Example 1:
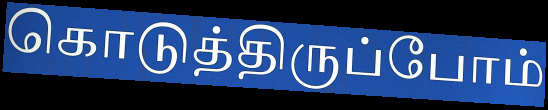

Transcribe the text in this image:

கொடுத்திருப்போம்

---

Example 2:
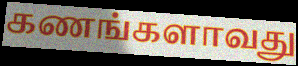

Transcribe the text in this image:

கணங்களாவது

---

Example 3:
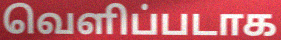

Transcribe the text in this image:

வெளிப்படாக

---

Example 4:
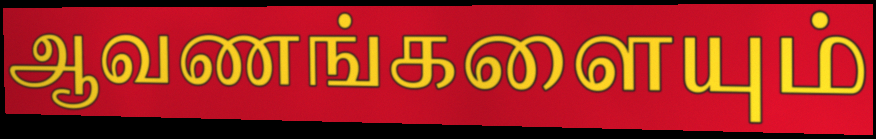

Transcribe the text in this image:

ஆவணங்களையும்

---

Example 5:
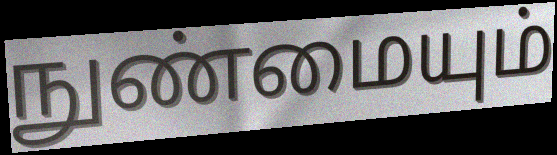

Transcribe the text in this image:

நுண்மையும்